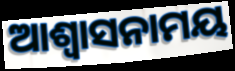
ଆଶ୍ୱାସନାମୟ